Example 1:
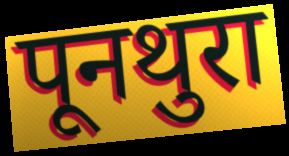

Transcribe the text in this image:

पूनथुरा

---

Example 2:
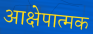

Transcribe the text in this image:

आक्षेपात्मक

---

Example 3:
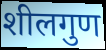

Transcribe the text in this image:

शीलगुण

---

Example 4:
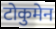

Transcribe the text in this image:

टोकुमेन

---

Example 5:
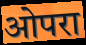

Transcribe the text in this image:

ओपरा